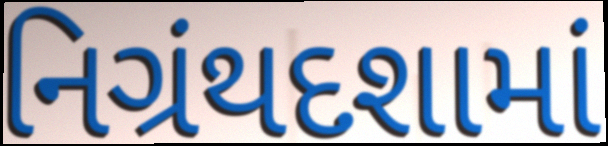
નિગ્રંથદશામાં